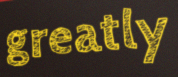
greatly